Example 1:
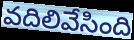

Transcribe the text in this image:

వదిలివేసింది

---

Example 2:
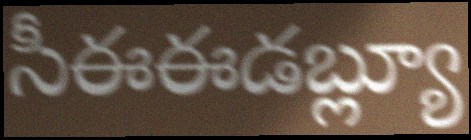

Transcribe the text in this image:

సీఈఈడబ్ల్యూ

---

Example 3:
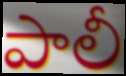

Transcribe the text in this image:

పాలీ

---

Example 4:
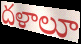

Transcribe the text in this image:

దళాలూ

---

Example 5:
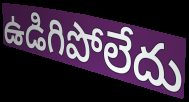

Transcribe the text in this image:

ఉడిగిపోలేదు